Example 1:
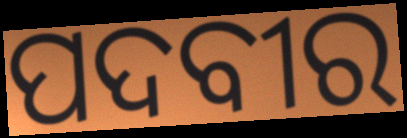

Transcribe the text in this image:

ପଦବୀର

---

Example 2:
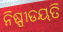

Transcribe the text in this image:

ନିଷ୍ପୀଡୟତି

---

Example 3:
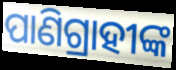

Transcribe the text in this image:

ପାଣିଗ୍ରାହୀଙ୍କ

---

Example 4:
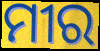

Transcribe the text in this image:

ମୀର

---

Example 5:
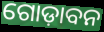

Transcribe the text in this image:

ଗୋଡ଼ାବନ